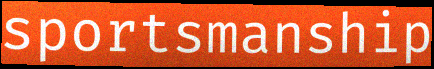
sportsmanship